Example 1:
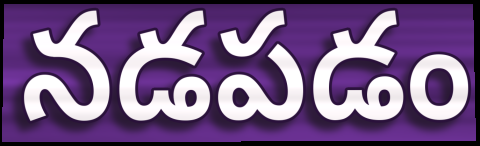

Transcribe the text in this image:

నడపడం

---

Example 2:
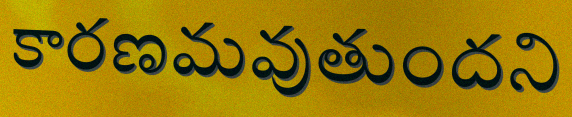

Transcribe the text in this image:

కారణమవుతుందని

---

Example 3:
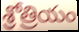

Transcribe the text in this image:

శ్రోత్రియం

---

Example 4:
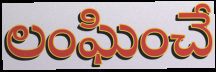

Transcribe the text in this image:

లంఘించే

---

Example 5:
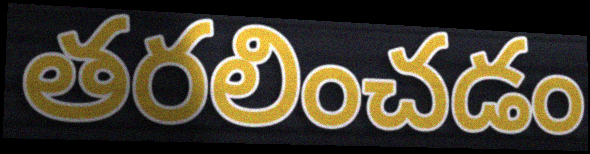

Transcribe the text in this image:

తరలించడం